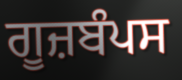
ਗੂਜ਼ਬੰਪਸ